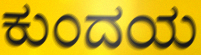
ಕುಂದಯ